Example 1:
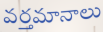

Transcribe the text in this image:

వర్తమానాలు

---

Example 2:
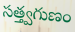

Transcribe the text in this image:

సత్త్వగుణం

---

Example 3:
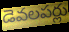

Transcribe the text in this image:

డెవలపర్లు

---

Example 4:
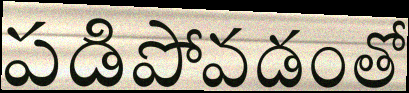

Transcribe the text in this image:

పడిపోవడంతో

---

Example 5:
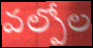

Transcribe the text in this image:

వల్పోల